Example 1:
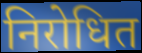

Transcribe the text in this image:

निरोधित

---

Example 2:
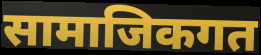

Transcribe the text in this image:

सामाजिकगत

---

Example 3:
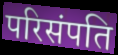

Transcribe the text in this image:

परिसंपति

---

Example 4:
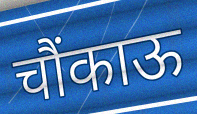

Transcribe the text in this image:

चौंकाऊ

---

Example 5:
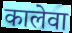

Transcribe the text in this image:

कालेवा